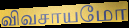
விவசாயமோ